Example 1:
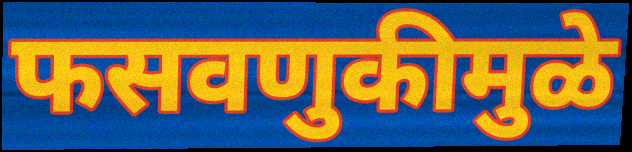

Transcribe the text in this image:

फसवणुकीमुळे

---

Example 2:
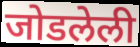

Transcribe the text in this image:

जोडलेली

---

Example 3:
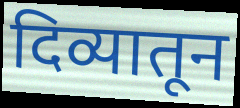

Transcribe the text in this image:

दिव्यातून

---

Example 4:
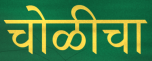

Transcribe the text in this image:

चोळीचा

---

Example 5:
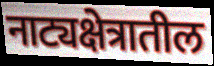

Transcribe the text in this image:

नाट्यक्षेत्रातील